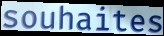
souhaites